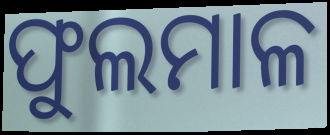
ଫୁଲମାଳ